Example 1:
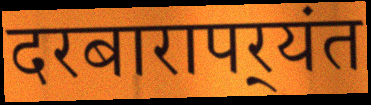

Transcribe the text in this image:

दरबारापर्यंत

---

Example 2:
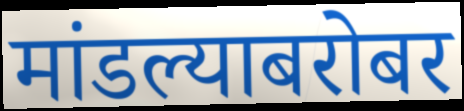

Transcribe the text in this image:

मांडल्याबरोबर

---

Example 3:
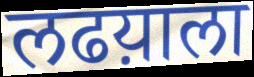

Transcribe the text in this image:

लढय़ाला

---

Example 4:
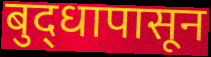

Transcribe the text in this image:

बुद्धापासून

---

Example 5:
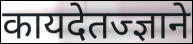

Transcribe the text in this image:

कायदेतज्ज्ञाने